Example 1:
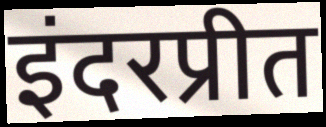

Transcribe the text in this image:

इंदरप्रीत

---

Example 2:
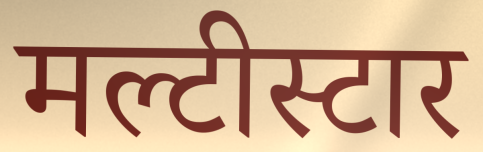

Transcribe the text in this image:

मल्टीस्टार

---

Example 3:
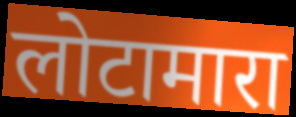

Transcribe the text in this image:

लोटामारा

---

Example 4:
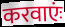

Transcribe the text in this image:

करवाएंः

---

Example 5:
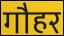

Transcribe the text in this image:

गौहर